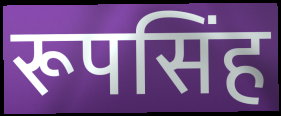
रूपसिंह